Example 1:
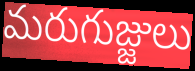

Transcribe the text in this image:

మరుగుజ్జులు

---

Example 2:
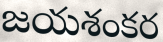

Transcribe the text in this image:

జయశంకర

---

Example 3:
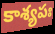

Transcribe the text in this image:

కాశ్యపః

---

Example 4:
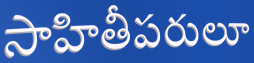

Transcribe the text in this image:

సాహితీపరులూ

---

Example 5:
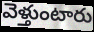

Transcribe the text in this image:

వెళ్తుంటారు